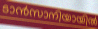
ടാൻസാനിയായിൽ